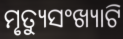
ମୃତ୍ୟୁସଂଖ୍ୟାଟି